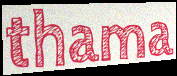
thama